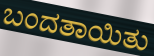
ಬಂದತಾಯಿತು